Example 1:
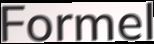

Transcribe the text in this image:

Formel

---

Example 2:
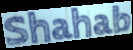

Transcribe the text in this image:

Shahab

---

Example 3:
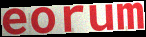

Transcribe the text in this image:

eorum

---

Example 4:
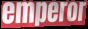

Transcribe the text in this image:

emperor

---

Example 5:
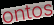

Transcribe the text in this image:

ontos